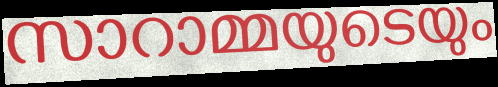
സാറാമ്മയുടെയും